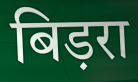
बिड़रा